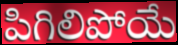
పిగిలిపోయే